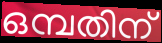
ഒമ്പതിന്